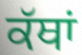
ਕੱਥਾਂ